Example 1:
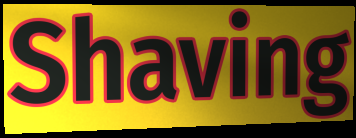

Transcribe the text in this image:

Shaving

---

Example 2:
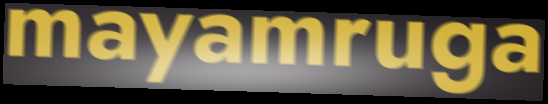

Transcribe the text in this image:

mayamruga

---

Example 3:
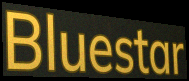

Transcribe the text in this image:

Bluestar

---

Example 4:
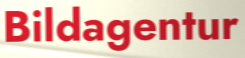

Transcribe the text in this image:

Bildagentur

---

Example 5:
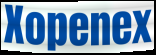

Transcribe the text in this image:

Xopenex